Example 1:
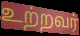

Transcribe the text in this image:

உற்றவர்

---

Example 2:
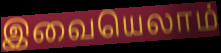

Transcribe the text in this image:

இவையெலாம்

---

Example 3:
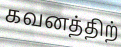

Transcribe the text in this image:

கவனத்திற்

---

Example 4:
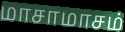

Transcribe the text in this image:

மாசாமாசம்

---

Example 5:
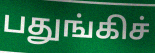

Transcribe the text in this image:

பதுங்கிச்